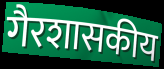
गैरशासकीय